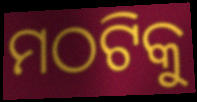
ମଠଟିକୁ